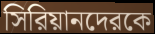
সিরিয়ানদেরকে